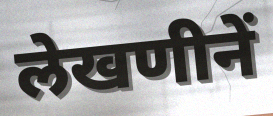
लेखणीनें